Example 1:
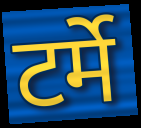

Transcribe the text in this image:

टर्मे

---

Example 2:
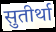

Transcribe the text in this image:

सुतीर्था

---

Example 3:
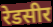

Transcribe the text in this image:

रेडसीर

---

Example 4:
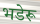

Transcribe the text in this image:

भडेरू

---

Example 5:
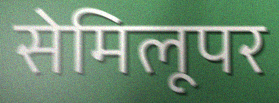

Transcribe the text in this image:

सेमिलूपर